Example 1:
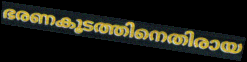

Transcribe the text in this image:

ഭരണകൂടത്തിനെതിരായ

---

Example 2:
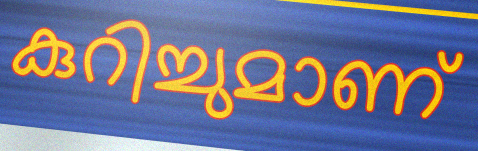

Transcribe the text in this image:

കുറിച്ചുമാണ്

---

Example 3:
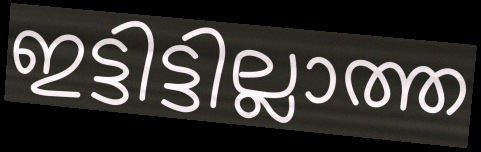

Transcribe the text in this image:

ഇട്ടിട്ടില്ലാത്ത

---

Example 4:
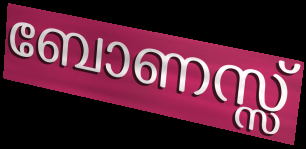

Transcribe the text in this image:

ബോണസ്സ്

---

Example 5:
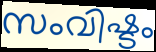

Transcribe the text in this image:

സംവിഷ്ടം